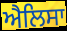
ਐਲਿਸਾ